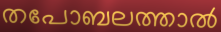
തപോബലത്താൽ